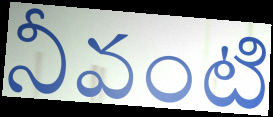
నీవంటి